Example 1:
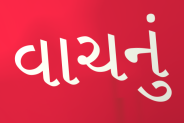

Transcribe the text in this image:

વાચનું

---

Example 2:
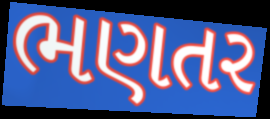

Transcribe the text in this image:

ભણતર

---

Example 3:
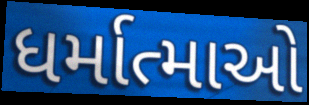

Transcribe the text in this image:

ધર્માત્માઓ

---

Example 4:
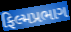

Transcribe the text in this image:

ફિલ્મપ્રભાગ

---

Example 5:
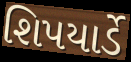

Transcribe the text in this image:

શિપયાર્ડે